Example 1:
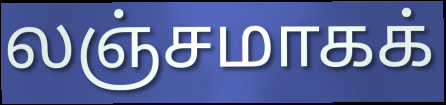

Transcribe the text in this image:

லஞ்சமாகக்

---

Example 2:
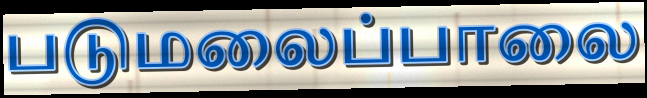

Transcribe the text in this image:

படுமலைப்பாலை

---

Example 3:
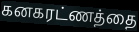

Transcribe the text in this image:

கனகரட்ணத்தை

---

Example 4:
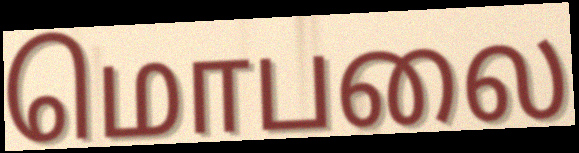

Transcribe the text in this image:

மொபலை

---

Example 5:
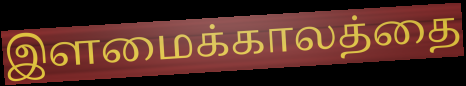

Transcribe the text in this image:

இளமைக்காலத்தை